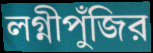
লগ্নীপুঁজির